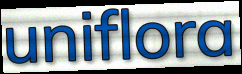
uniflora